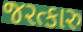
જરત્કારુ